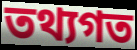
তথ্যগত